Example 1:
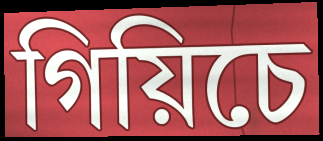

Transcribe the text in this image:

গিয়িচে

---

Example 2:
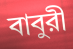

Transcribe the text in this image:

বাবুরী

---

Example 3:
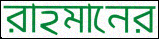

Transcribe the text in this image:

রাহমানের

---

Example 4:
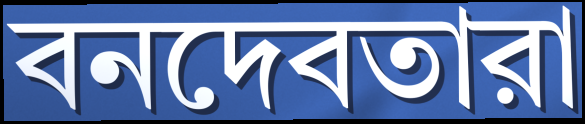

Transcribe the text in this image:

বনদেবতারা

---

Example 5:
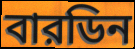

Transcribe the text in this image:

বারডিন